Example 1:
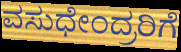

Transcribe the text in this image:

ವಸುಧೇಂದ್ರರಿಗೆ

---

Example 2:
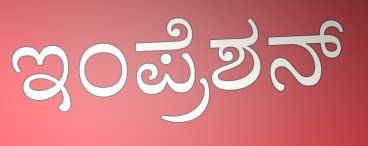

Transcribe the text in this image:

ಇಂಪ್ರೆಶನ್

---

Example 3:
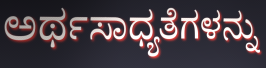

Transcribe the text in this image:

ಅರ್ಥಸಾಧ್ಯತೆಗಳನ್ನು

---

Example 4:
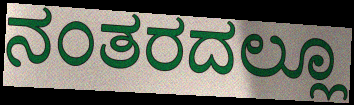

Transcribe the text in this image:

ನಂತರದಲ್ಲೂ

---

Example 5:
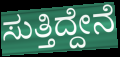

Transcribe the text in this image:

ಸುತ್ತಿದ್ದೇನೆ